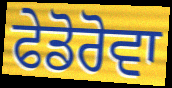
ਫੇਡੋਰੋਵਾ